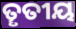
ତୄତୀୟ